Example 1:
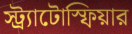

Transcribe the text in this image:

স্ট্র্যাটোস্ফিয়ার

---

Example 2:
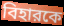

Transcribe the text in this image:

বিহারকে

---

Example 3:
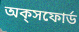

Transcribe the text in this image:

অক্‌সফোর্ড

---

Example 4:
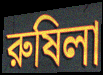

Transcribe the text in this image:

রুষিলা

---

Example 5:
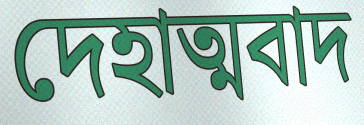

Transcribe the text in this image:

দেহাত্মবাদ